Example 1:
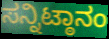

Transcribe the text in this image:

ಸನ್ನಿಟ್ಠಾನಂ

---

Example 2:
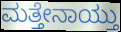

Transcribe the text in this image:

ಮತ್ತೇನಾಯ್ತು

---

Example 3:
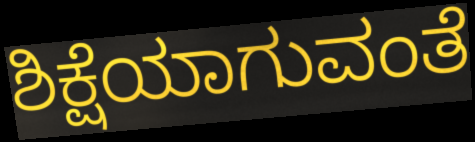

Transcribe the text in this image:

ಶಿಕ್ಷೆಯಾಗುವಂತೆ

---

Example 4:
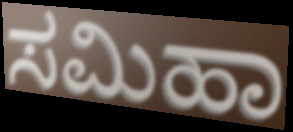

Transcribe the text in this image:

ಸಮಿಹಾ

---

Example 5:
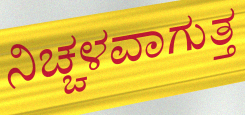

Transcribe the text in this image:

ನಿಚ್ಚಳವಾಗುತ್ತ